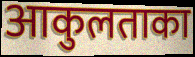
आकुलताका